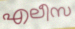
എലീസ